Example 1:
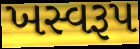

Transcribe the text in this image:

ખસ્વરૂપ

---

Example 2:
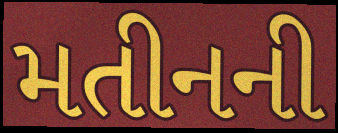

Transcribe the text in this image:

મતીનની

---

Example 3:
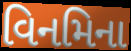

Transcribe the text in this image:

વિનમિના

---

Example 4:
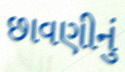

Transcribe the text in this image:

છાવણીનું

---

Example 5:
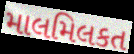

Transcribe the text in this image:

માલમિલકત